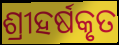
ଶ୍ରୀହର୍ଷକୃତ